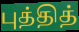
புத்தித்